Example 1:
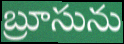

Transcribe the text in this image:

బ్రూసును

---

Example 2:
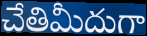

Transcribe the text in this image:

చేతిమీదుగా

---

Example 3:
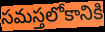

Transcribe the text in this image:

సమస్తలోకానికి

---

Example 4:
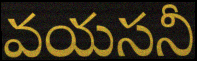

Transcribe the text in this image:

వయసనీ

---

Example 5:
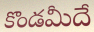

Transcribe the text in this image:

కొండమీదే